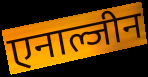
एनाल्जीन